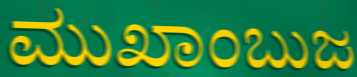
ಮುಖಾಂಬುಜ